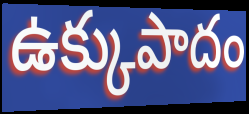
ఉక్కుపాదం